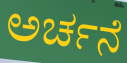
ಅರ್ಚನೆ